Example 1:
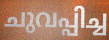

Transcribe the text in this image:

ചുവപ്പിച്ച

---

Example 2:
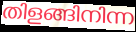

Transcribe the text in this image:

തിളങ്ങിനിന്ന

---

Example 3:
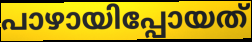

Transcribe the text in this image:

പാഴായിപ്പോയത്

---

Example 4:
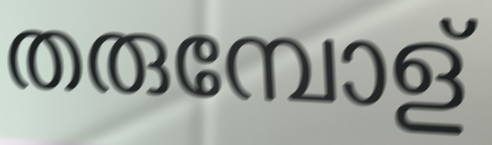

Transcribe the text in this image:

തരുമ്പോള്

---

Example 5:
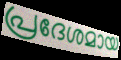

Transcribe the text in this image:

പ്രദേശമായ